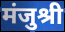
मंजुश्री